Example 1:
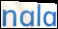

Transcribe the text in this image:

nala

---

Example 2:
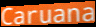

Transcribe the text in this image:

Caruana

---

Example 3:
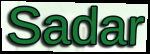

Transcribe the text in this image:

Sadar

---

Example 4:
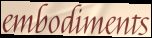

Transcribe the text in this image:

embodiments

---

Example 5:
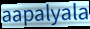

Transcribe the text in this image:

aapalyala